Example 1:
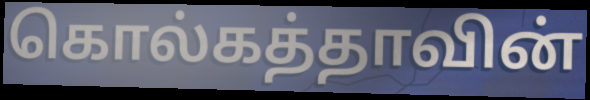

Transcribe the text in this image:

கொல்கத்தாவின்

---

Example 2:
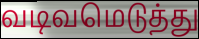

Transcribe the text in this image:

வடிவமெடுத்து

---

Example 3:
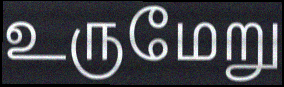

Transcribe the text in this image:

உருமேறு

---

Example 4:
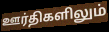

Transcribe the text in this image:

ஊர்திகளிலும்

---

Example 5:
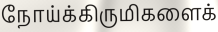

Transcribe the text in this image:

நோய்க்கிருமிகளைக்